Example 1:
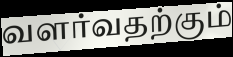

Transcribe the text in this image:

வளர்வதற்கும்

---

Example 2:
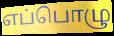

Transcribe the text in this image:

எப்பொழு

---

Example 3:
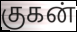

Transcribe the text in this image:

குகன்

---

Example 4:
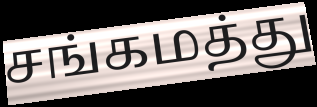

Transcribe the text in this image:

சங்கமத்து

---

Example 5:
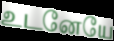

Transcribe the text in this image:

உடனேயே